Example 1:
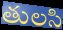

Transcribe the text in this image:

తులసి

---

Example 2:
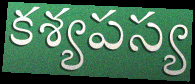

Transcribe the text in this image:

కశ్యపస్య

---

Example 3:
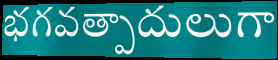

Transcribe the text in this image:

భగవత్పాదులుగా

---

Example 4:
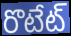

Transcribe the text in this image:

రొటేట్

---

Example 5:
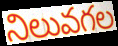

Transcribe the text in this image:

నిలువగల